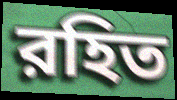
রহিত